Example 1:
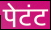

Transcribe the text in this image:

पेटंट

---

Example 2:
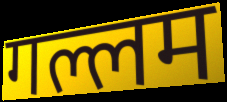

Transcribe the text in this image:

गल्लम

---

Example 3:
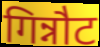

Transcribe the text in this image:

गिन्नौट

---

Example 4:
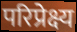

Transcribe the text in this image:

परिप्रेक्ष्य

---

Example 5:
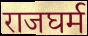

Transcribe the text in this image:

राजघर्म